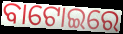
ବାଟୋଇରେ